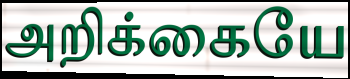
அறிக்கையே